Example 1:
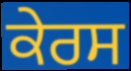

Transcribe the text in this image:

ਕੇਰਸ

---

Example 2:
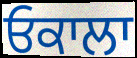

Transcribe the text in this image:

ਓਕਾਲਾ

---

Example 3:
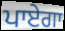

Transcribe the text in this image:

ਪਾਏਗਾ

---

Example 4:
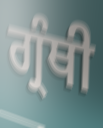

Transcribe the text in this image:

ਗ੍ਰੰਥੀ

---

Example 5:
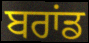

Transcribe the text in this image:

ਬਰਾਂਡ